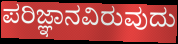
ಪರಿಜ್ಞಾನವಿರುವುದು